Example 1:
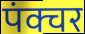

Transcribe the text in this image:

पंक्चर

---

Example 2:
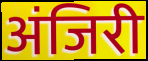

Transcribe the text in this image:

अंजिरी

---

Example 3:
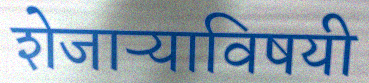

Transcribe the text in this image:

शेजाऱ्याविषयी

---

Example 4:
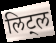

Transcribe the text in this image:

लिट्‌ल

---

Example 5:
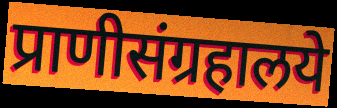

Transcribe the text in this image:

प्राणीसंग्रहालये